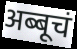
अब्बूचं